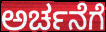
ಅರ್ಚನೆಗೆ